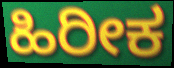
ಹಿರೀಕ